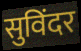
सुविंदर